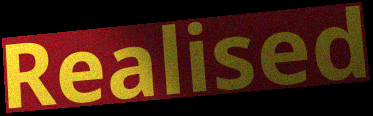
Realised